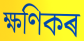
ক্ষণিকৰ